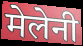
मेलेनी